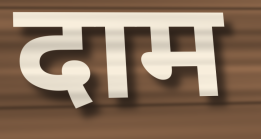
दाम